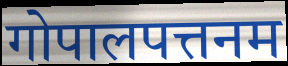
गोपालपत्तनम